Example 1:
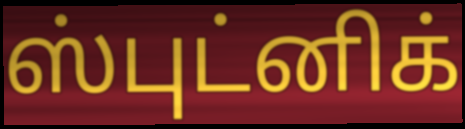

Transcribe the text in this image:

ஸ்புட்னிக்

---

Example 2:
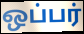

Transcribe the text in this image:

ஒப்பர்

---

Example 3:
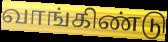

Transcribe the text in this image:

வாங்கிண்டு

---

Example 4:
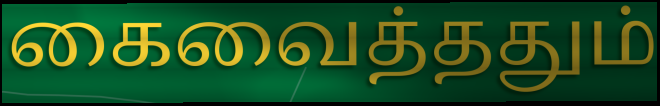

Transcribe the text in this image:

கைவைத்ததும்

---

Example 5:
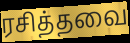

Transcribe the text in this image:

ரசித்தவை